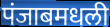
पंजाबमधली